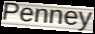
Penney